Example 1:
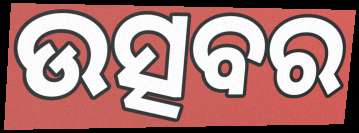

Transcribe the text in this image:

ଉତ୍ସବର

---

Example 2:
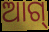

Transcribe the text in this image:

ଆଗ୍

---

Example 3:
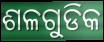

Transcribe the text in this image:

ଶଳଗୁଡିକ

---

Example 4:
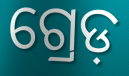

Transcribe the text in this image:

ଗ୍ରେଡ଼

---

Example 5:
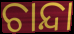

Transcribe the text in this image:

ଚାନ୍ଦା